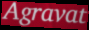
Agravat